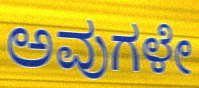
ಅವುಗಳೇ